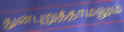
துன்புறுத்தாமலும்